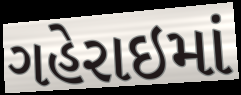
ગહેરાઇમાં